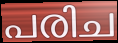
പരിച